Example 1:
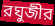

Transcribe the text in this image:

রঘুজীর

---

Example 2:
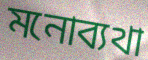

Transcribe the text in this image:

মনোব্যথা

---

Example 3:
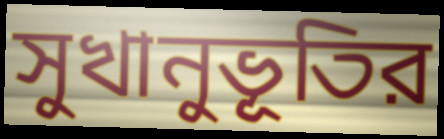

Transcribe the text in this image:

সুখানুভূতির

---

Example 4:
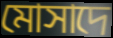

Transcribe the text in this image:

মোসাদে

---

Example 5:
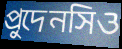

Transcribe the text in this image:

প্রুদেনসিও